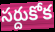
సర్దుకోక